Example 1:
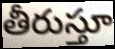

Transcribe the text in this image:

తీరుస్తూ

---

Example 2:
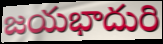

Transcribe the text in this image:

జయభాదురి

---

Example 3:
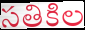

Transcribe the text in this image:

సతికిల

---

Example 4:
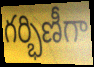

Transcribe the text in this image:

గర్భిణీగా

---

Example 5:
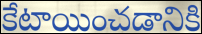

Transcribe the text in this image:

కేటాయించడానికి